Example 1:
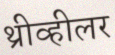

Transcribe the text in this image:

थ्रीव्हीलर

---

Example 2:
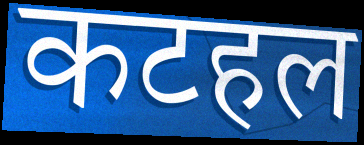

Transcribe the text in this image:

कटहल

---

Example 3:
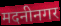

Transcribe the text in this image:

मदनीनगर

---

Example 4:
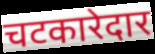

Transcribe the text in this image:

चटकारेदार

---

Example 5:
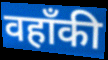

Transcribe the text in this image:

वहाँकी